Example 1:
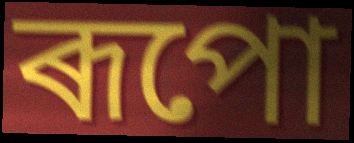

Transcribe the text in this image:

ৰূপো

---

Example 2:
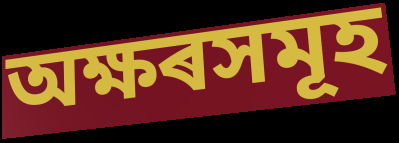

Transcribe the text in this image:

অক্ষৰসমূহ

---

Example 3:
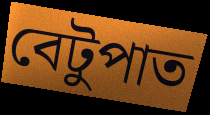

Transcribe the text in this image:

বেটুপাত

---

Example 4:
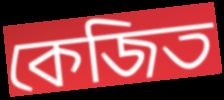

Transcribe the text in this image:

কেজিত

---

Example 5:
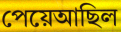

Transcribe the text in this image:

পেয়েআছিল